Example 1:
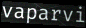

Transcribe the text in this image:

vaparvi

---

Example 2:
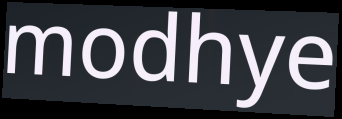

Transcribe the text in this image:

modhye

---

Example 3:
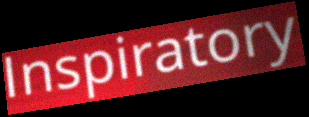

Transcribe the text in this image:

Inspiratory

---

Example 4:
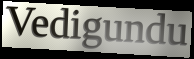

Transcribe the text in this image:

Vedigundu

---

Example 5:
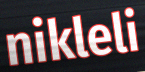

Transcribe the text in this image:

nikleli